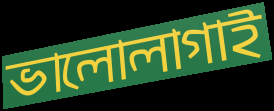
ভালোলাগাই